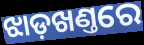
ଝାଡ଼ଖଣ୍ତରେ